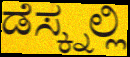
ಡೆಸ್ಕ್ನಲ್ಲಿ